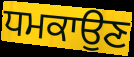
ਧਮਕਾਉਣ